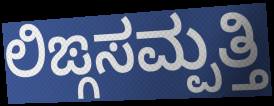
ಲಿಙ್ಗಸಮ್ಪತ್ತಿ